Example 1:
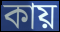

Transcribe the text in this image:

কায়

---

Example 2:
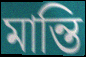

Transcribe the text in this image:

মান্তি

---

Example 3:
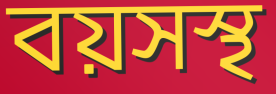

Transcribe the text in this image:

বয়সস্থ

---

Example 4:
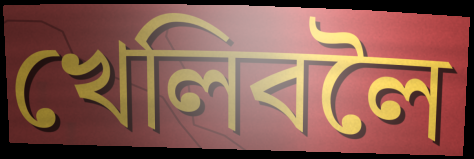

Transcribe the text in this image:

খেলিবলৈ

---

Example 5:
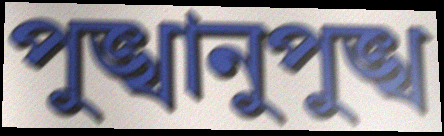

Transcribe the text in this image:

পুঙ্খানুপুঙ্খ